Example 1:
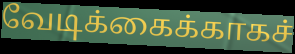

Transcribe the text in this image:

வேடிக்கைக்காகச்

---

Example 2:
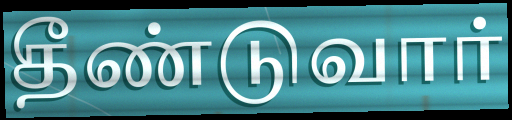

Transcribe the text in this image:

தீண்டுவார்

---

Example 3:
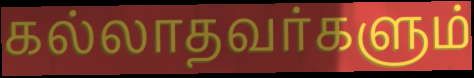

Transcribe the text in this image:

கல்லாதவர்களும்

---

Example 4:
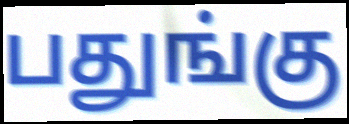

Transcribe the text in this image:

பதுங்கு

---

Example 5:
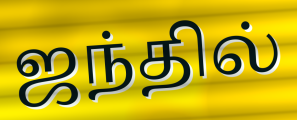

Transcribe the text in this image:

ஜந்தில்